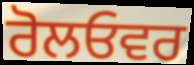
ਰੋਲਓਵਰ